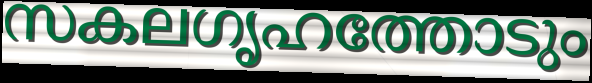
സകലഗൃഹത്തോടും